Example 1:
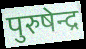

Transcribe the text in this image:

पुरुषेन्द्र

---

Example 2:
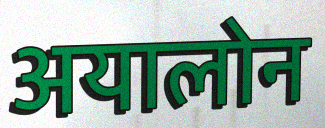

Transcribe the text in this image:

अयालोन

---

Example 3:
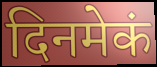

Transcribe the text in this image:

दिनमेकं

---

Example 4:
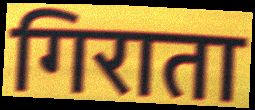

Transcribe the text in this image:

गिराता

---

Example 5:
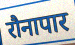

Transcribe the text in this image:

रौनापार